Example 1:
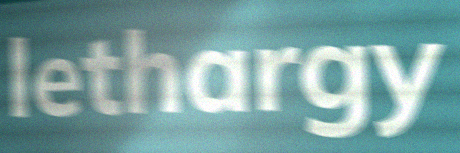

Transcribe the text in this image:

lethargy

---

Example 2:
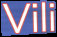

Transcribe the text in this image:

Vili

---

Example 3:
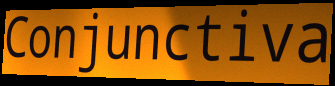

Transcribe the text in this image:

Conjunctiva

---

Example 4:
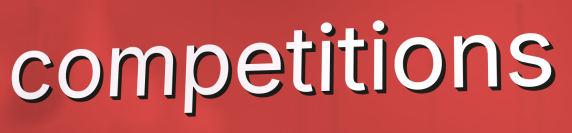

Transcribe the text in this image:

competitions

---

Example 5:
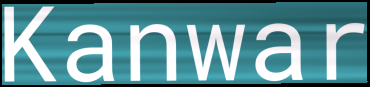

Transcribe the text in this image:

Kanwar